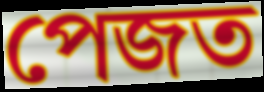
পেজত